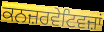
ਕਨਜ਼ਰਵੇਟਿਵਜ਼ਾਂ